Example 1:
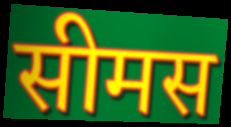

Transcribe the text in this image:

सीमस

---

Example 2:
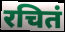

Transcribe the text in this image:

रचितं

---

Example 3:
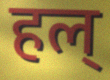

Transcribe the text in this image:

हल्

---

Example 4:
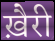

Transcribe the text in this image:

ख़ैरी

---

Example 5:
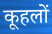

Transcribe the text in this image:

कूहलों